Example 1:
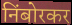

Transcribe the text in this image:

निंबोरकर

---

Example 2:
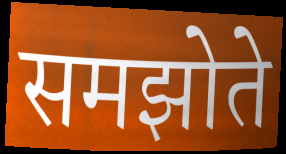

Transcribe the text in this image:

समझोते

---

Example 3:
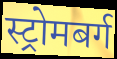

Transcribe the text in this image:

स्ट्रोमबर्ग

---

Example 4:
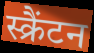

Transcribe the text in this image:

स्क्रैंटन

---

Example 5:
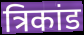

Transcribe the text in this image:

त्रिकांड